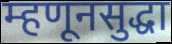
म्हणूनसुद्धा